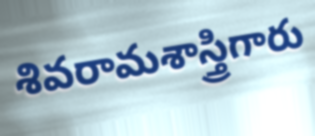
శివరామశాస్త్రిగారు